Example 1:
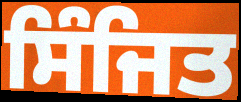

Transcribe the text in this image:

ਸਿੰਜਿਤ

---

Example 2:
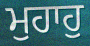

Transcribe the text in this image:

ਮੁਹਾਹੁ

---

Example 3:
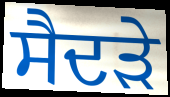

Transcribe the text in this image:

ਸੈਦੜੇ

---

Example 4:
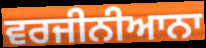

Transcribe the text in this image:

ਵਰਜੀਨੀਆਨਾ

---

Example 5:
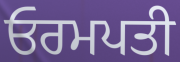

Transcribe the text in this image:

ਓਰਮਪਤੀ